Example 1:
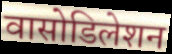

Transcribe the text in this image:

वासोडिलेशन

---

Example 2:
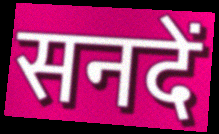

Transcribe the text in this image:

सनदें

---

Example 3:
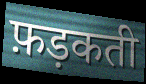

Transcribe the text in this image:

फ़ड़कती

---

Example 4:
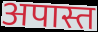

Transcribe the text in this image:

अपास्‍त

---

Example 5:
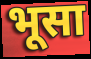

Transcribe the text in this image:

भूसा